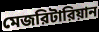
মেজরিটারিয়ান